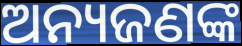
ଅନ୍ୟଜଣଙ୍କ